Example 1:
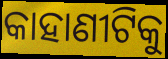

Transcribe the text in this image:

କାହାଣୀଟିକୁ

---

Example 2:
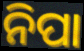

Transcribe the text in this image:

ନିପା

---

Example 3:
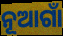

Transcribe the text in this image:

ନୂଆଗାଁ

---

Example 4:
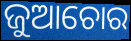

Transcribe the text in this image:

ଜୁଆଚୋର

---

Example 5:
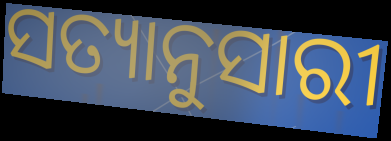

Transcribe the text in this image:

ସତ୍ୟାନୁସାରୀ